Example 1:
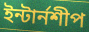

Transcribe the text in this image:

ইন্টার্নশীপ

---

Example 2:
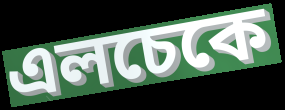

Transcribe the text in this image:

এলচেকে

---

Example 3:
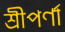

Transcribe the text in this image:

শ্রীপর্ণা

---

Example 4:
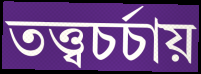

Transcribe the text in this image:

তত্ত্বচর্চায়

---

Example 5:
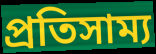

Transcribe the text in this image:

প্রতিসাম্য